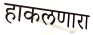
हाकलणारा